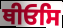
ਥੀਓਸਿ